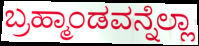
ಬ್ರಹ್ಮಾಂಡವನ್ನೆಲ್ಲಾ